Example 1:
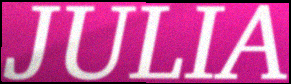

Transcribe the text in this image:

JULIA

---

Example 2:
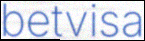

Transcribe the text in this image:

betvisa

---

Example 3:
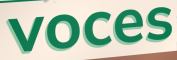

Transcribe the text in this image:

voces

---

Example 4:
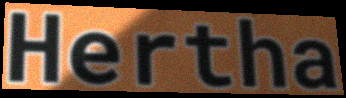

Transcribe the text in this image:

Hertha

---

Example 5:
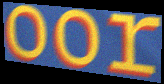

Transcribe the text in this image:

oor